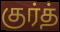
குர்த்